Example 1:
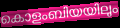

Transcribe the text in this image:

കൊളംബിയയിലും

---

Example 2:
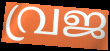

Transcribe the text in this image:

വ്രജ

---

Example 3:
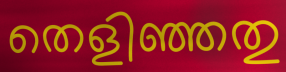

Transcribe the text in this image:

തെളിഞ്ഞതു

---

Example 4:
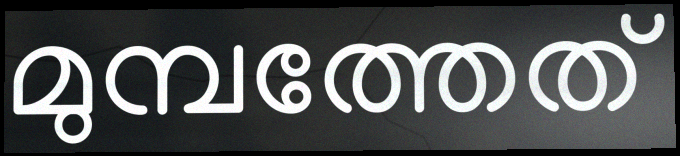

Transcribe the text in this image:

മുമ്പത്തേത്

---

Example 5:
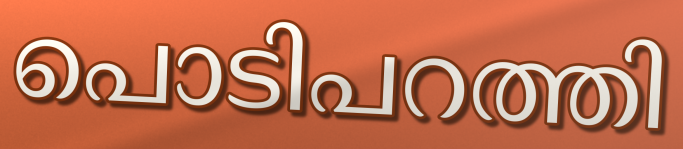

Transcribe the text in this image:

പൊടിപറത്തി